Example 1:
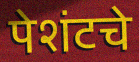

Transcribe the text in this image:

पेशंटचे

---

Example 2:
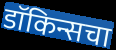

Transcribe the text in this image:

डॉकिन्सचा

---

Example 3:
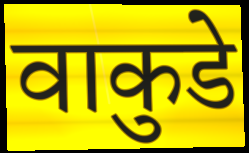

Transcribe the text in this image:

वाकुडे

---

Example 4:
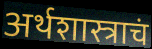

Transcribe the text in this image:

अर्थशास्त्राचं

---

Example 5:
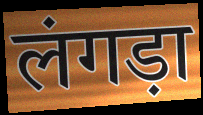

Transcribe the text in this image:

लंगड़ा